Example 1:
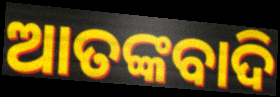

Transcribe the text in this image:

ଆତଙ୍କବାଦି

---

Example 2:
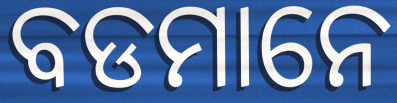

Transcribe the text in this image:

ବଡମାନେ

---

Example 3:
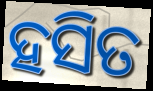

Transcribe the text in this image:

ହସିତ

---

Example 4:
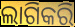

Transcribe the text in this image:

ଲାଗିକରି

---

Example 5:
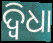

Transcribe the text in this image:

ଦ୍ୱିଧା